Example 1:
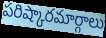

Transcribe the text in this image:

పరిష్కారమార్గాలు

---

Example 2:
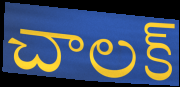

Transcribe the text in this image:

చాలక్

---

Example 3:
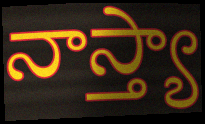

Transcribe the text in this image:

నాస్త్యా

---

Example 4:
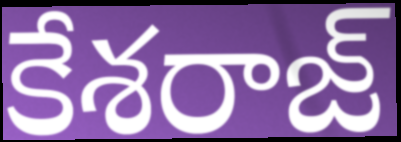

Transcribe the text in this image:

కేశరాజ్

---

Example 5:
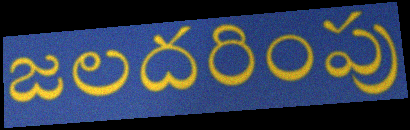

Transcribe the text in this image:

జలదరింపు